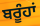
ਬਰੂੰਹਾਂ